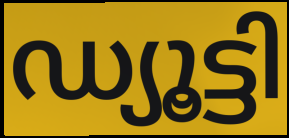
ഡ്യൂട്ടി